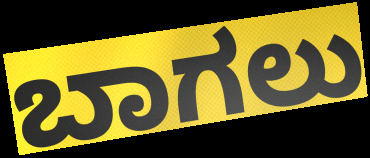
ಬಾಗಲು